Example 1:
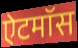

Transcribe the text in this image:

ऐटमॉस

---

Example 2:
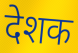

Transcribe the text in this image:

देशक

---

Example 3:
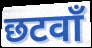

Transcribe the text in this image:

छटवाँ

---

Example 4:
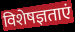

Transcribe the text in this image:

विशेषज्ञताएं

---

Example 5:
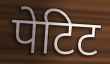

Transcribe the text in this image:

पेटिट